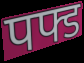
पफ्ड